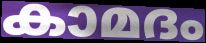
കാമദം